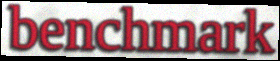
benchmark